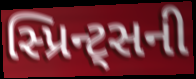
સ્પ્રિન્ટ્સની